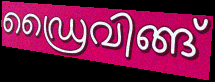
ഡ്രൈവിങ്ങ്